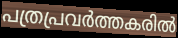
പത്രപ്രവർത്തകരിൽ